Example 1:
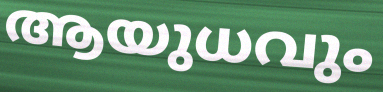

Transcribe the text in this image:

ആയുധവും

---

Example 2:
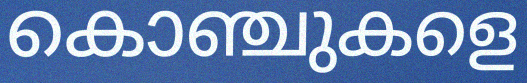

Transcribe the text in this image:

കൊഞ്ചുകളെ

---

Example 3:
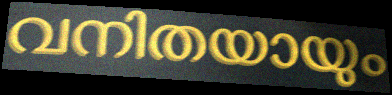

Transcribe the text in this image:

വനിതയായും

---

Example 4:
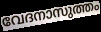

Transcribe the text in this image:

വേദനാസുത്തം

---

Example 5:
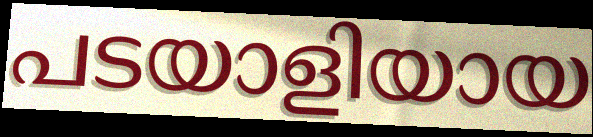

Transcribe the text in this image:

പടയാളിയായ